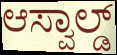
ಆಸ್ವಾಲ್ಡ್